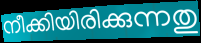
നീക്കിയിരിക്കുന്നതു